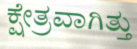
ಕ್ಷೇತ್ರವಾಗಿತ್ತು